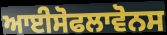
ਆਈਸੋਫਲਾਵੋਨਸ